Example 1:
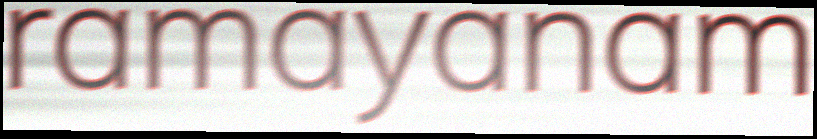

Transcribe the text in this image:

ramayanam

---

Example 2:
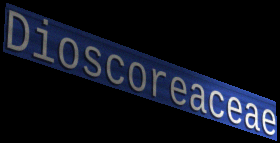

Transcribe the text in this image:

Dioscoreaceae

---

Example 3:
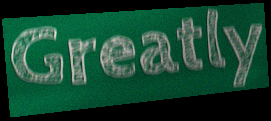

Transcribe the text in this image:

Greatly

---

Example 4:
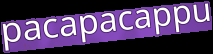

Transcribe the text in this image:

pacapacappu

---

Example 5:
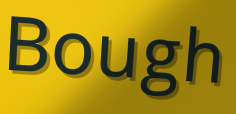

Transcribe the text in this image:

Bough